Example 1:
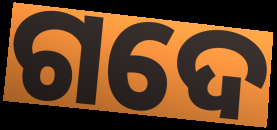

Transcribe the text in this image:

ଗଦେ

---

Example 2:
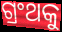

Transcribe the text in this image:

ଗ୍ରଂଥକୁ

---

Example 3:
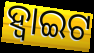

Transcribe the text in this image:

ହ୍ୱାଇଟ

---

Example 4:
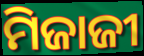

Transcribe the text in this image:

ମିଜାଜୀ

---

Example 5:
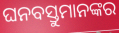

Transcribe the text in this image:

ଘନବସ୍ତୁମାନଙ୍କର